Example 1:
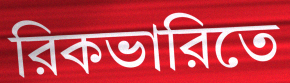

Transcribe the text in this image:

রিকভারিতে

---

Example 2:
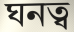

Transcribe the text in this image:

ঘনত্ব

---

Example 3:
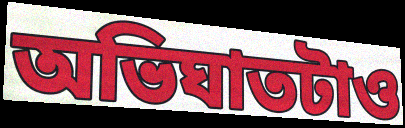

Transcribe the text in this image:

অভিঘাতটাও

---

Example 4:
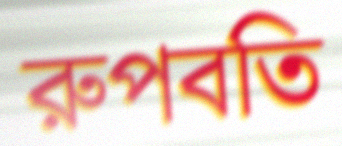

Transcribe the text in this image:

রুপবতি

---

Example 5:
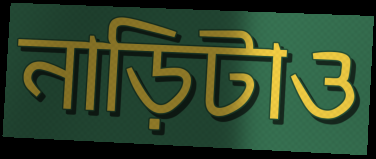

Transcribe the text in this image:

নাড়িটাও